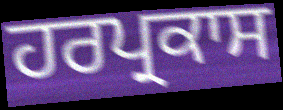
ਹਰਪ੍ਰਕਾਸ